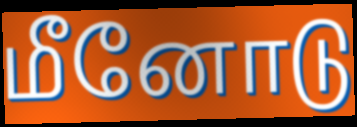
மீனோடு